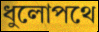
ধুলোপথে